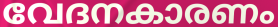
വേദനകാരണം